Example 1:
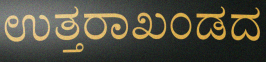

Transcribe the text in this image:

ಉತ್ತರಾಖಂಡದ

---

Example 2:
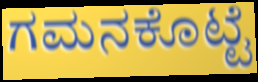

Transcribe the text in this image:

ಗಮನಕೊಟ್ಟೆ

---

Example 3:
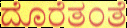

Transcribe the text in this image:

ದೊರೆತಂತೆ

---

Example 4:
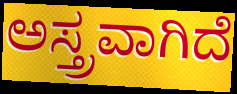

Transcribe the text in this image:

ಅಸ್ತ್ರವಾಗಿದೆ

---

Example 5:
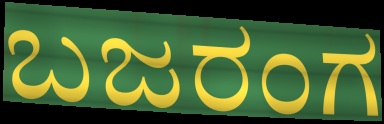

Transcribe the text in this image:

ಬಜರಂಗ